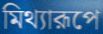
মিথ্যারূপে